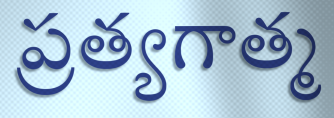
ప్రత్యగాత్మ